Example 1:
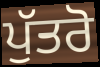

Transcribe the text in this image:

ਪੁੱਤਰੋ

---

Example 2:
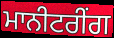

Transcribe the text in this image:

ਮਾਨੀਟਰੀਂਗ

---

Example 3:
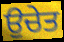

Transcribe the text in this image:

ਉਚੇਤ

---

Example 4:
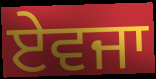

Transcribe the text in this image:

ਏਵਜਾ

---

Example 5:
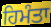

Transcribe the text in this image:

ਹਿਮੰਤਾ